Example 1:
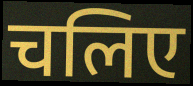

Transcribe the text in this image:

चलिए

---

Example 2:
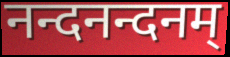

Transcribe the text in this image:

नन्दनन्दनम्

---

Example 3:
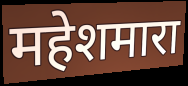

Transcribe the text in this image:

महेशमारा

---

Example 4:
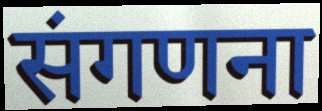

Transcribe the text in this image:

संगणना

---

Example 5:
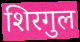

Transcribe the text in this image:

शिरगुल